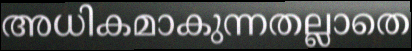
അധികമാകുന്നതല്ലാതെ